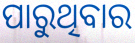
ପାରୁଥିବାର